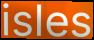
isles